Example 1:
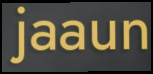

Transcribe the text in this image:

jaaun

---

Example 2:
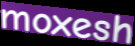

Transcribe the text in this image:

moxesh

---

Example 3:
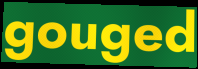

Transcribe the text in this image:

gouged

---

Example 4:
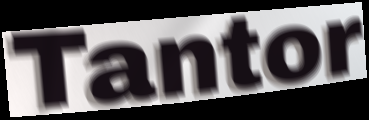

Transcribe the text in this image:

Tantor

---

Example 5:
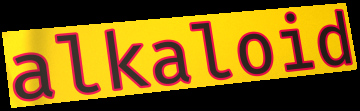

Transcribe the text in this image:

alkaloid